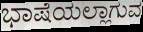
ಭಾಷೆಯಲ್ಲಾಗುವ